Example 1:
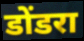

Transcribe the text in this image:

डोंडरा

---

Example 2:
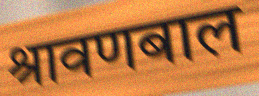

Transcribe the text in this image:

श्रावणबाल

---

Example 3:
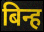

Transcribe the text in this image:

बिन्ह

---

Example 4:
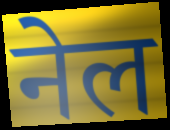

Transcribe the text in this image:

नेल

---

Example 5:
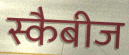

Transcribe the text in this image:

स्कैबीज